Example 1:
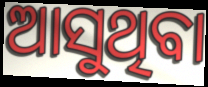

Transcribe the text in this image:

ଆସୁଥିବା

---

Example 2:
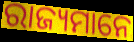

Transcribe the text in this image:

ରାଜ୍ୟମାନେ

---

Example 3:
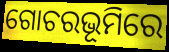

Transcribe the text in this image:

ଗୋଚରଭୂମିରେ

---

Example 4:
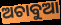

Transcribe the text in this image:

ଅଚାବୁଆ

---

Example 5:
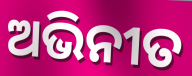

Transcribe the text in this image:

ଅଭିନୀତ